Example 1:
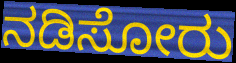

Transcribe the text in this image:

ನಡಿಸೋರು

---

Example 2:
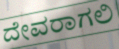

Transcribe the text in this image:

ದೇವರಾಗಲಿ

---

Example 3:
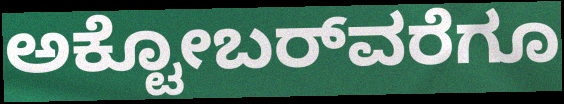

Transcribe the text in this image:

ಅಕ್ಟೋಬರ್‌ವರೆಗೂ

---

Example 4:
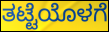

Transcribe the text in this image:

ತಟ್ಟೆಯೊಳಗೆ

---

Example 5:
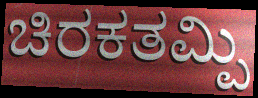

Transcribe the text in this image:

ಚಿರಕತಮ್ಪಿ